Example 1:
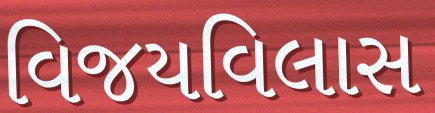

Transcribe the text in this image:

વિજયવિલાસ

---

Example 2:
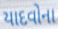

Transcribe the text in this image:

યાદવોના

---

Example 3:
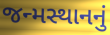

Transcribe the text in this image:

જન્મસ્થાનનું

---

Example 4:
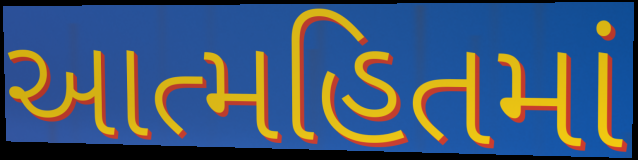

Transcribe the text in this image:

આત્મહિતમાં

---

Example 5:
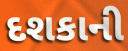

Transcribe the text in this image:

દશકાની